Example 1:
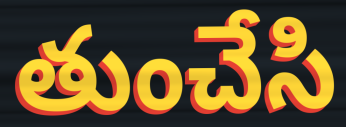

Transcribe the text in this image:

తుంచేసి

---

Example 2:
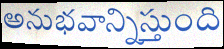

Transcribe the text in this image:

అనుభవాన్నిస్తుంది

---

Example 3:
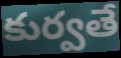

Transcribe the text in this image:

కుర్వతే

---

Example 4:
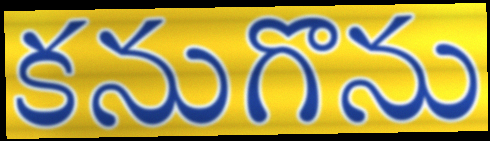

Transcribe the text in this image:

కనుగొను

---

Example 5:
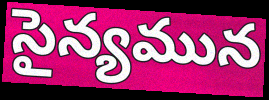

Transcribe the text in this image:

సైన్యమున